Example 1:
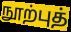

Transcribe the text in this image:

நூற்புத்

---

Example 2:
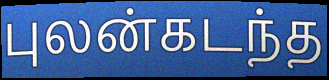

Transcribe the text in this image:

புலன்கடந்த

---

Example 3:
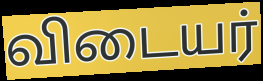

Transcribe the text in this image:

விடையர்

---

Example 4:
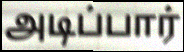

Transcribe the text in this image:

அடிப்பார்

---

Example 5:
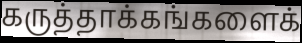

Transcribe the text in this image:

கருத்தாக்கங்களைக்